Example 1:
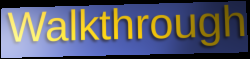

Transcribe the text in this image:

Walkthrough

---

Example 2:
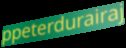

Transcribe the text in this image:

ppeterdurairaj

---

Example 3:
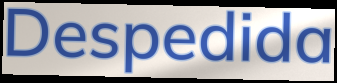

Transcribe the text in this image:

Despedida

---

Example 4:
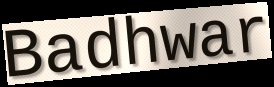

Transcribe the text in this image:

Badhwar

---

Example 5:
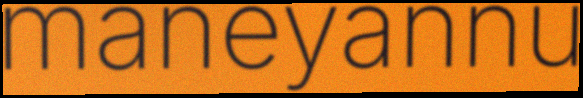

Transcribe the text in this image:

maneyannu